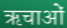
ऋचाओं